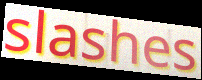
slashes